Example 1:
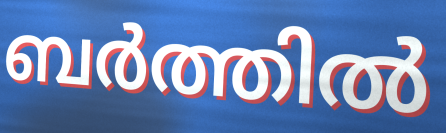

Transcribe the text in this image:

ബർത്തിൽ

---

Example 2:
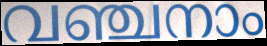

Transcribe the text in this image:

വഞ്ചനാം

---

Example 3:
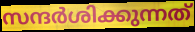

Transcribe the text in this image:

സന്ദർശിക്കുന്നത്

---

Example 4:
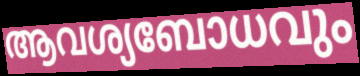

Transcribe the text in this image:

ആവശ്യബോധവും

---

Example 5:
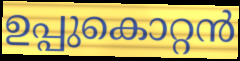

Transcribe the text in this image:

ഉപ്പുകൊറ്റൻ